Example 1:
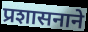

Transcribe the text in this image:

प्रशासनाने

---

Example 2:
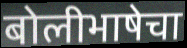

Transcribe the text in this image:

बोलीभाषेचा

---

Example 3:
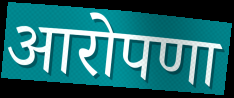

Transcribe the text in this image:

आरोपणा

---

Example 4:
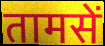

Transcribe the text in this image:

तामसें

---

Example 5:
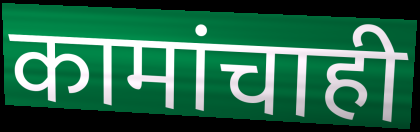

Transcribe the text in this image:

कामांचाही